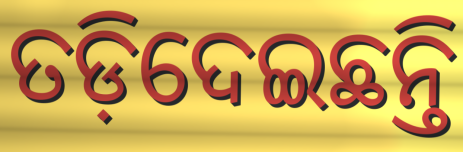
ତଡ଼ିଦେଇଛନ୍ତି